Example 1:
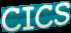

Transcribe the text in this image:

CICS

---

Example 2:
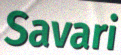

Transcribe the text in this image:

Savari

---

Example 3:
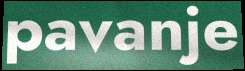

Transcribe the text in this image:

pavanje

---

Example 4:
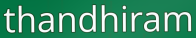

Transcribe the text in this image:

thandhiram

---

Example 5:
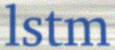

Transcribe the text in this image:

lstm